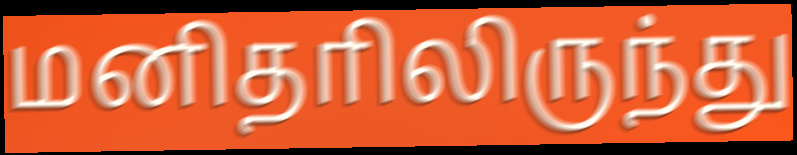
மனிதரிலிருந்து